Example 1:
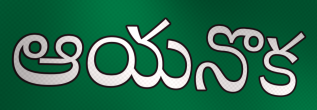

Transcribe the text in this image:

ఆయనొక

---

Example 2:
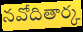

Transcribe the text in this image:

నవోదితార్క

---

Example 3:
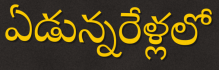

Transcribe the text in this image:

ఏడున్నరేళ్లలో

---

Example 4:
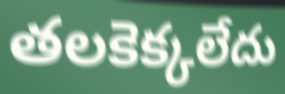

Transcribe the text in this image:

తలకెక్కలేదు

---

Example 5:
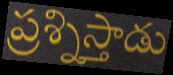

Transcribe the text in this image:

ప్రశ్నిస్తాడు